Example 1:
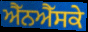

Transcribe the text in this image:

ਐੱਨਐੱਸਕੇ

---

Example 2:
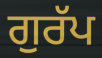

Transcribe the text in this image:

ਗੁਰੱਪ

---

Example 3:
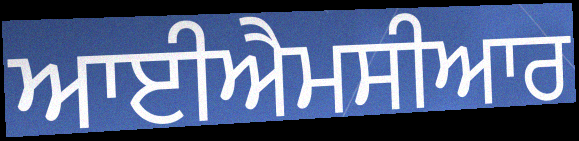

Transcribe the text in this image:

ਆਈਐਮਸੀਆਰ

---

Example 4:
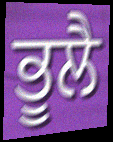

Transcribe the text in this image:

ਭੂਲੈ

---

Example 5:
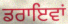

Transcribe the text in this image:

ਡਰਾਇਵਾਂ